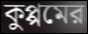
কুপ্পমের